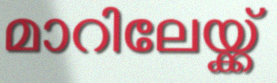
മാറിലേയ്ക്ക്